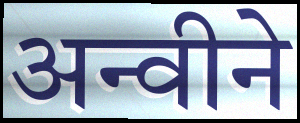
अन्वीने